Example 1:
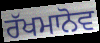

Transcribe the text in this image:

ਰੱਖਮਾਨੋਵ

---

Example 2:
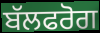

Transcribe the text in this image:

ਬੱਲਫਰੋਗ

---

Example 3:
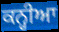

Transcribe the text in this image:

ਕਨ੍ਹੀਆ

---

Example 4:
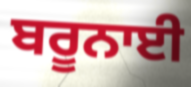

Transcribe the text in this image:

ਬਰੂਨਾਈ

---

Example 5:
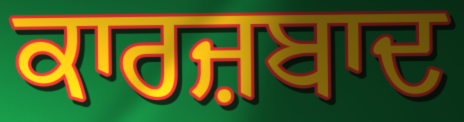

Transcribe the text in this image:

ਕਾਰਜ਼ਬਾਦ